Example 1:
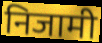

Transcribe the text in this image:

निजामी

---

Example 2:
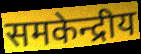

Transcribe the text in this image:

समकेन्द्रीय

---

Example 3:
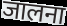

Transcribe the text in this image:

जालना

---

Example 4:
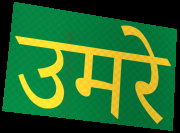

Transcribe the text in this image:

उमरे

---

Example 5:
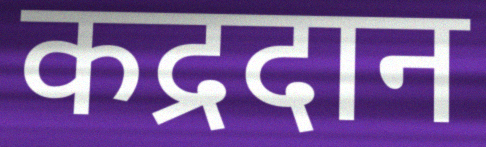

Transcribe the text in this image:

कद्रदान